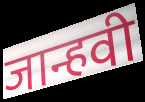
जान्हवी